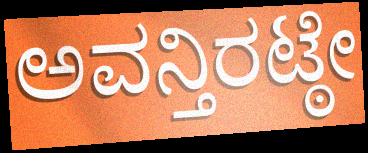
ಅವನ್ತಿರಟ್ಠೇ